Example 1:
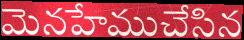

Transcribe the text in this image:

మెనహేముచేసిన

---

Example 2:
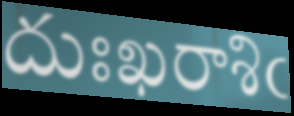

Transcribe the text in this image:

దుఃఖరాశిఁ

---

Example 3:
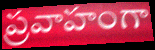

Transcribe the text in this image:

ప్రవాహంగా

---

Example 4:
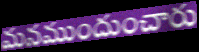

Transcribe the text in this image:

మనముందుంచారు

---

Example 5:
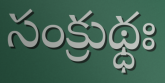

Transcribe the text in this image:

సంక్రుథ్ధః